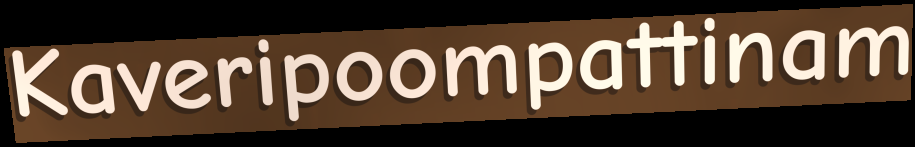
Kaveripoompattinam